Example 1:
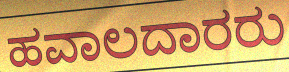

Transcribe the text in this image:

ಹವಾಲದಾರರು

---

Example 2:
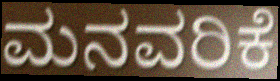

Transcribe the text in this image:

ಮನವರಿಕೆ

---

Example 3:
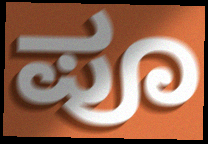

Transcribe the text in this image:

ಪೂ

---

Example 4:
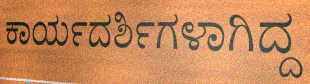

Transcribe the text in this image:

ಕಾರ್ಯದರ್ಶಿಗಳಾಗಿದ್ದ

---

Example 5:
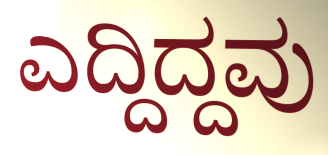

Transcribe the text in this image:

ಎದ್ದಿದ್ದವು